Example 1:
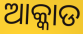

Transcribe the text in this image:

ଆକ୍କାଡ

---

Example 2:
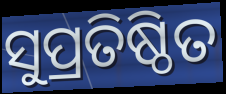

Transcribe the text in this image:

ସୁପ୍ରତିଷ୍ଠିତ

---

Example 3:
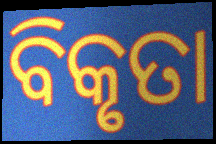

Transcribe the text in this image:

ବିକୃତା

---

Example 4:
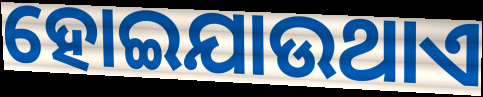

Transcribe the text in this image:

ହୋଇଯାଉଥାଏ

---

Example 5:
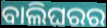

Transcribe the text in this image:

ବାଲିଘରର